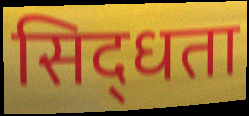
सिद्धता